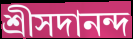
শ্রীসদানন্দ